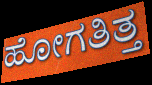
ಹೋಗತಿತ್ತ